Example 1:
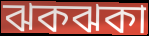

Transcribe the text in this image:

ঝকঝকা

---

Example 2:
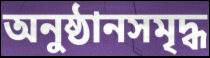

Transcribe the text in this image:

অনুষ্ঠানসমৃদ্ধ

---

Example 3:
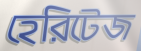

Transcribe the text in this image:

হেরিটেজ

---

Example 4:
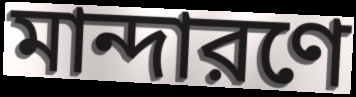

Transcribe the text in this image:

মান্দারণে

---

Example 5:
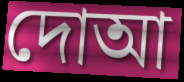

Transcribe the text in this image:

দোআ